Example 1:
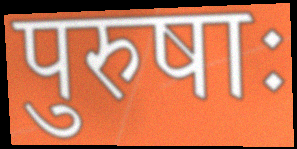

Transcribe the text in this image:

पुरुषाः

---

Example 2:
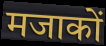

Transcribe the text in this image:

मजाकों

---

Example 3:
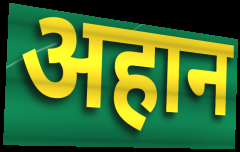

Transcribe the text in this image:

अहान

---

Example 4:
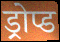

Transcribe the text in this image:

ड्रोप्ड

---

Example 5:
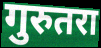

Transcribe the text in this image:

गुरुतरा